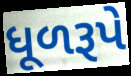
ધૂળરૂપે